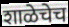
शाळेचेच